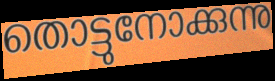
തൊട്ടുനോക്കുന്നു